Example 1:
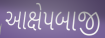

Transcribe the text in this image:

આક્ષેપબાજી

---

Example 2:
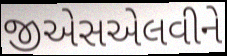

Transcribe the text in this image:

જીએસએલવીને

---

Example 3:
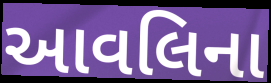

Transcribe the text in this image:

આવલિના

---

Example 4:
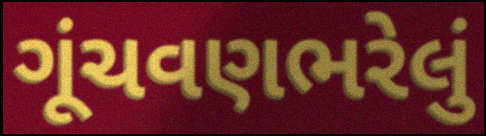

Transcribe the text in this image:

ગૂંચવણભરેલું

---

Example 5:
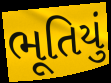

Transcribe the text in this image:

ભૂતિયું